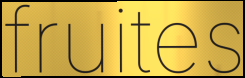
fruites